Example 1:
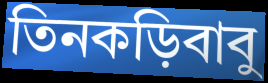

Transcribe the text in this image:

তিনকড়িবাবু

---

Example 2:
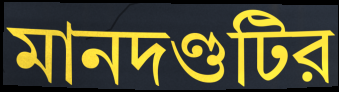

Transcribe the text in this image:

মানদণ্ডটির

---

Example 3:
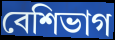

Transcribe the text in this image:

বেশিভাগ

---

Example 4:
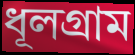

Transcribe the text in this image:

ধূলগ্রাম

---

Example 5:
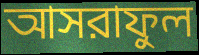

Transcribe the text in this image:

আসরাফুল